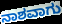
ನಾಶವಾಗು